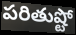
పరితుష్టో